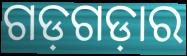
ଗଡ଼ଗଡ଼ାର